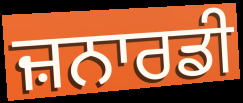
ਜ਼ਨਾਰਡੀ